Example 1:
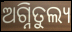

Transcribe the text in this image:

ଅଗ୍ନିତୁଲ୍ୟ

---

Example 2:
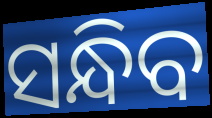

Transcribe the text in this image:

ସନ୍ଧିବ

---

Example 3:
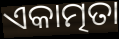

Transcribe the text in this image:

ଏକାତ୍ମତା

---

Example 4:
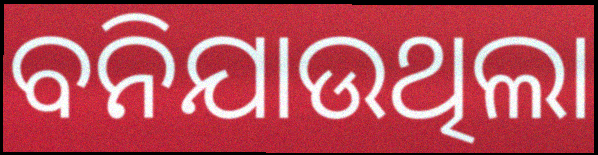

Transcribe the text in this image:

ବନିଯାଉଥିଲା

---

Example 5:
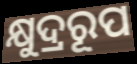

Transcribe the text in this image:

କ୍ଷୁଦ୍ରରୂପ